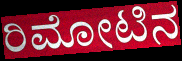
ರಿಮೋಟಿನ